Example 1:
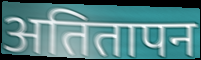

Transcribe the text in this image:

अतितापन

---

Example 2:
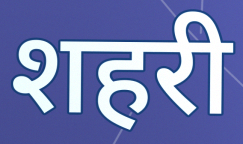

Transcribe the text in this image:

शहरी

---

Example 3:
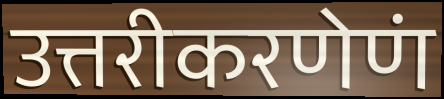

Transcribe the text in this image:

उत्तरीकरणेणं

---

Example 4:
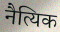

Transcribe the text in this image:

नैत्यिक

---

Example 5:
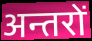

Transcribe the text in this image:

अन्तरों